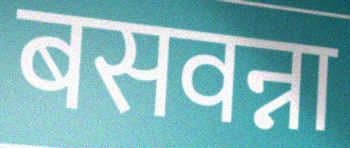
बसवन्ना